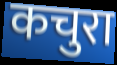
कचुरा